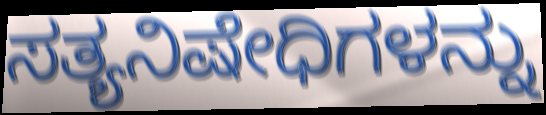
ಸತ್ಯನಿಷೇಧಿಗಳನ್ನು